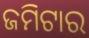
ଜମିଟାର